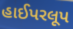
હાઈપરલૂપ